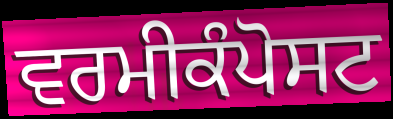
ਵਰਮੀਕੰਪੋਸਟ